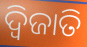
ଦ୍ୱିଜାତି